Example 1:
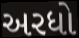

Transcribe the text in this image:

અરધો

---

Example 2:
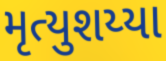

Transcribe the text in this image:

મૃત્યુશય્યા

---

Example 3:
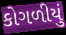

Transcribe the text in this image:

કોગળીયું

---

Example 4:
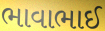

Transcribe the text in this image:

ભાવાભાઈ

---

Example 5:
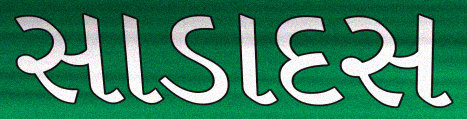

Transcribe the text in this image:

સાડાદસ